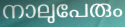
നാലുപേരും